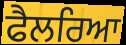
ਫੈਲਰਿਆ